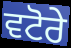
ਵਟੋਰੇ